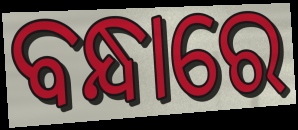
ବନ୍ଧାରେ